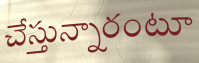
చేస్తున్నారంటూ